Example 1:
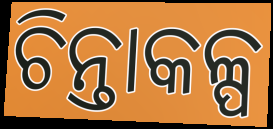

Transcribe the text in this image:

ଚିନ୍ତାକଳ୍ପ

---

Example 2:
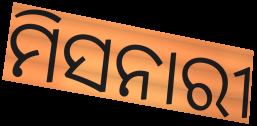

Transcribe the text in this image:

ମିସନାରୀ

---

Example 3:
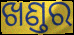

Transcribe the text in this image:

ଖଣ୍ଡର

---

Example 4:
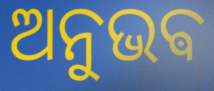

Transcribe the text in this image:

ଅନୁଭଵ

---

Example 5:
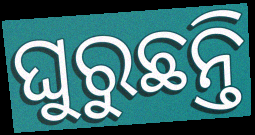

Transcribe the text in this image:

ଘୁରୁଛନ୍ତି